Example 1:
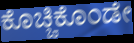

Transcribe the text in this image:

ಕೊಚ್ಚಿಕೊಂಡೇ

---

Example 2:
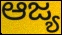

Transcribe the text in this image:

ಆಜ್ಯ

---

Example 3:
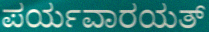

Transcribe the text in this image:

ಪರ್ಯವಾರಯತ್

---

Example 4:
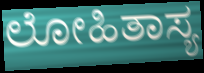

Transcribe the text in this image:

ಲೋಹಿತಾಸ್ಯ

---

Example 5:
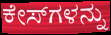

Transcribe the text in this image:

ಕೇಸ್‌ಗಳನ್ನು